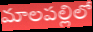
మాలపల్లిలో